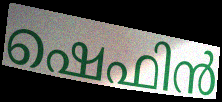
ഷെഫിൻ